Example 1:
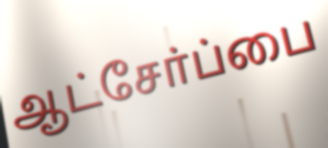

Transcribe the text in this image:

ஆட்சேர்ப்பை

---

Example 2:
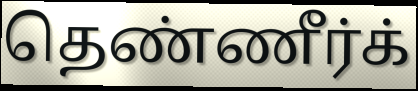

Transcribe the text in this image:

தெண்ணீர்க்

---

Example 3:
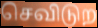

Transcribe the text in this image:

செவிடுற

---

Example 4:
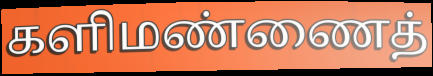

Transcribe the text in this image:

களிமண்ணைத்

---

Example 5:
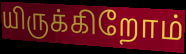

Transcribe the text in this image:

யிருக்கிறோம்